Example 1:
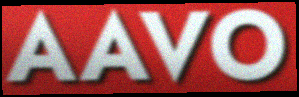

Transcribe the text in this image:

AAVO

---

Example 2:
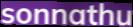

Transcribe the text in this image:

sonnathu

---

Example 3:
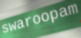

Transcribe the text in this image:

swaroopam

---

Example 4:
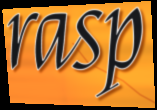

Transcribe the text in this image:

rasp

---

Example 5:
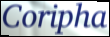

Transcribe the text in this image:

Coripha